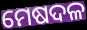
ମେଷଦଳ